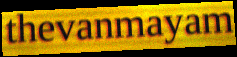
thevanmayam